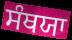
ਸੰਥਯਾ